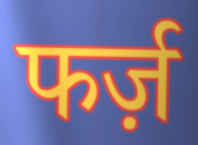
फर्ज़